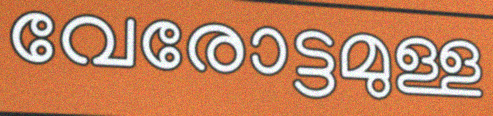
വേരോട്ടമുള്ള